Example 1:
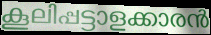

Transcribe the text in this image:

കൂലിപ്പട്ടാളക്കാരൻ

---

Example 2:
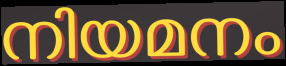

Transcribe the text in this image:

നിയമനം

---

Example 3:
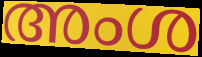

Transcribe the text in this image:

അംശ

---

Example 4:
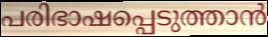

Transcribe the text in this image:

പരിഭാഷപ്പെടുത്താൻ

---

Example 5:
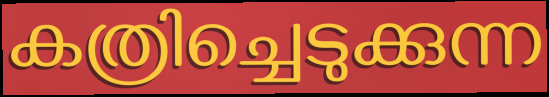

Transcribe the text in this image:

കത്രിച്ചെടുക്കുന്ന